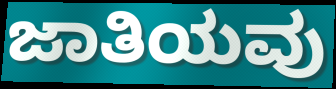
ಜಾತಿಯವು